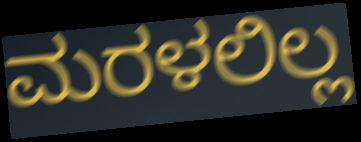
ಮರಳಲಿಲ್ಲ